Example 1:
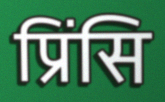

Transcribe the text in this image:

प्रिंसि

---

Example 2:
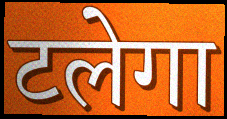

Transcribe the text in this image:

टलेगा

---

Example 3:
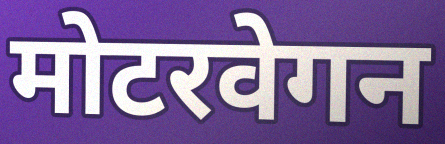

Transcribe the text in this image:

मोटरवेगन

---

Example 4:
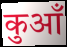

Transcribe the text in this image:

कुआँ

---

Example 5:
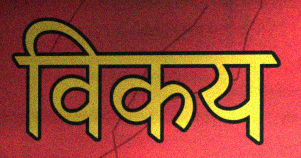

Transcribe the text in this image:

विकय